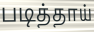
படித்தாய்